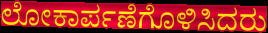
ಲೋಕಾರ್ಪಣೆಗೊಳಿಸಿದರು